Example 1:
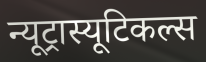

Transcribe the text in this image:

न्यूट्रास्यूटिकल्स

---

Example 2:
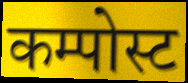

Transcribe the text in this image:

कम्पोस्ट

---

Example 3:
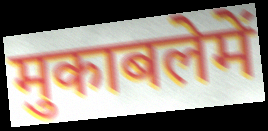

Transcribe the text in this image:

मुकाबलेमें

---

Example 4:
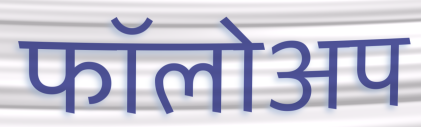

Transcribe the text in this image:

फॉलोअप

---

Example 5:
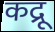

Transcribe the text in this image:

कद्रू